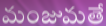
మంజుమతే